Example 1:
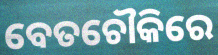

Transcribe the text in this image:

ବେତଚୌକିରେ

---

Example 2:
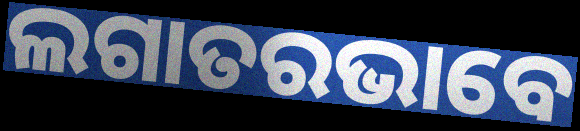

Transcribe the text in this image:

ଲଗାତରଭାବେ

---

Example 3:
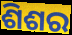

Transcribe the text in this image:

ଶିଶର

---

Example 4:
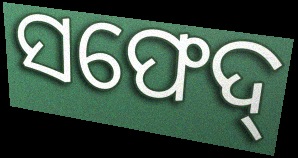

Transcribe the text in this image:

ସଫେଦ୍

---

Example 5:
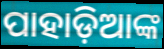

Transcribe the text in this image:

ପାହାଡ଼ିଆଙ୍କ